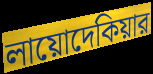
লায়োদেকিয়ার